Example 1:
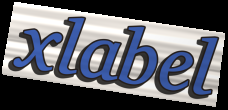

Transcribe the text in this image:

xlabel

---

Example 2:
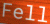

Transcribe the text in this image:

Fell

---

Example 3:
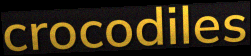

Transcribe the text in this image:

crocodiles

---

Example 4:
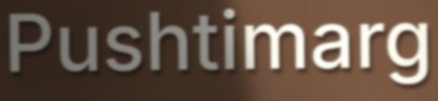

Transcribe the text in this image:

Pushtimarg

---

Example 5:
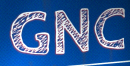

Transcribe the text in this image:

GNC